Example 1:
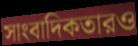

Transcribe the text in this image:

সাংবাদিকতারও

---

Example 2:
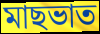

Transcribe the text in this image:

মাছভাত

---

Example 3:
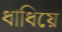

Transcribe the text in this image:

ধাধিয়ে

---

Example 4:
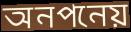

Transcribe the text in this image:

অনপনেয়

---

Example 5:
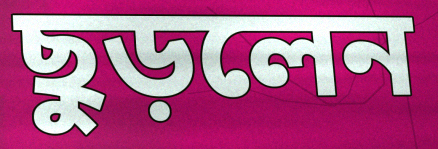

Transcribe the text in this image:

ছুড়লেন